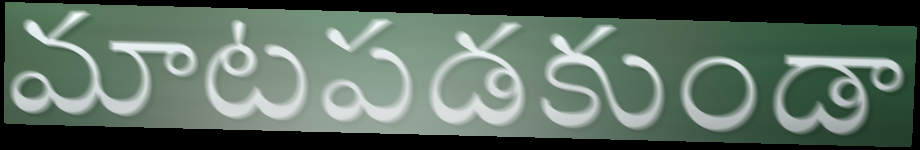
మాటపడకుండా